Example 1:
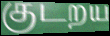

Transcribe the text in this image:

குடறய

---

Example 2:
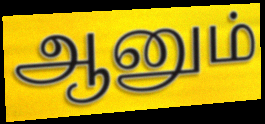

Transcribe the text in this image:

ஆனும்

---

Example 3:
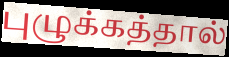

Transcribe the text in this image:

புழுக்கத்தால்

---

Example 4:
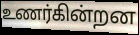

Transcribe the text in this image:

உணர்கின்றன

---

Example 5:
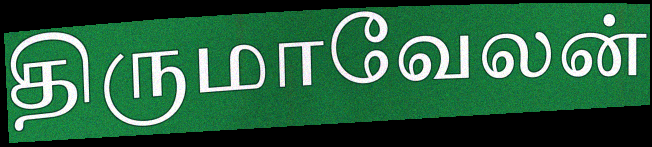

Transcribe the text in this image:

திருமாவேலன்